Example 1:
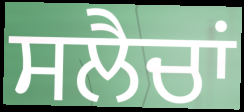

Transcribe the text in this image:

ਸਲੈਚਾਂ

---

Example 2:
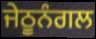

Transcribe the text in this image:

ਜੇਠੂਨੰਗਲ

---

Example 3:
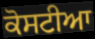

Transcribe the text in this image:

ਕੋਸਟੀਆ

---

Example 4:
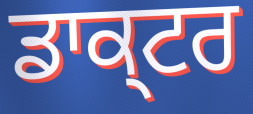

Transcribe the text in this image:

ਡਾਕ੍ਟਰ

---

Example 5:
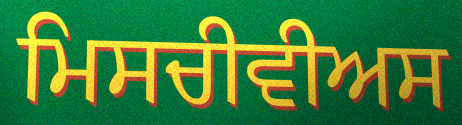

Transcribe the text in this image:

ਮਿਸਚੀਵੀਅਸ